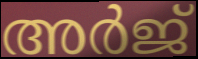
അർജ്